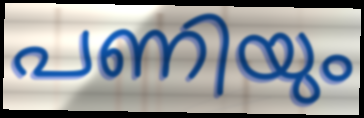
പണിയും